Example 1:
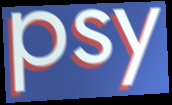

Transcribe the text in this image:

psy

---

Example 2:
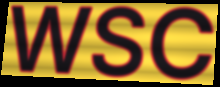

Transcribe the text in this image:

WSC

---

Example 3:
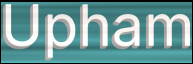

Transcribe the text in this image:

Upham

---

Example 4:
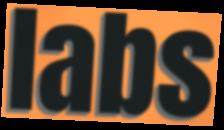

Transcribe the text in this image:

labs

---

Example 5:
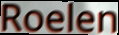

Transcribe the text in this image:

Roelen